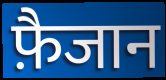
फ़ैजान